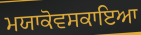
ਮਯਾਕੋਵਸਕਾਇਆ